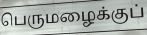
பெருமழைக்குப்